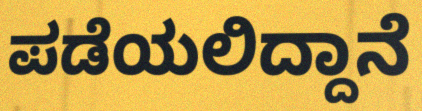
ಪಡೆಯಲಿದ್ದಾನೆ